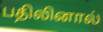
பதிலினால்